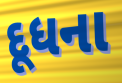
દૂધના